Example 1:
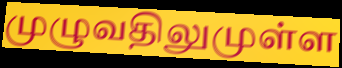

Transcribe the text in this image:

முழுவதிலுமுள்ள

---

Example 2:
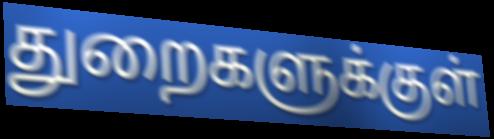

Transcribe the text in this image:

துறைகளுக்குள்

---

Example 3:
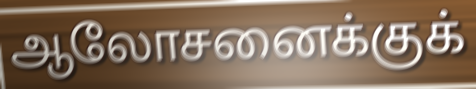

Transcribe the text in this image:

ஆலோசனைக்குக்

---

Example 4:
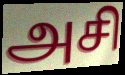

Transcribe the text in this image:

அசி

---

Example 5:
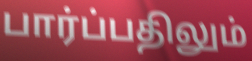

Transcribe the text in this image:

பார்ப்பதிலும்